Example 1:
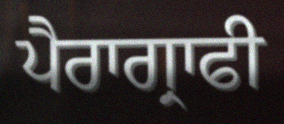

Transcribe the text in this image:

ਪੈਰਾਗ੍ਰਾਫੀ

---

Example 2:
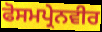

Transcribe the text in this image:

ਫੋਸਮਪ੍ਰੇਨਵੀਰ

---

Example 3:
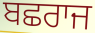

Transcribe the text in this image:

ਬਛਰਾਜ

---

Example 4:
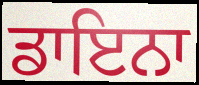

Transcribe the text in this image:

ਡਾਇਨਾ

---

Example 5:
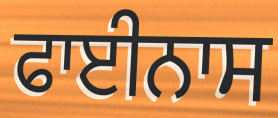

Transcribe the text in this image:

ਫਾਈਨਾਸ